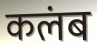
कलंब